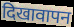
दिखावापन